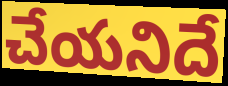
చేయనిదే